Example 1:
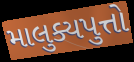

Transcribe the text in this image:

માલુક્યપુત્તો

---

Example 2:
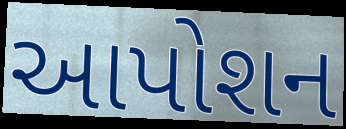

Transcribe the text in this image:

આપોશન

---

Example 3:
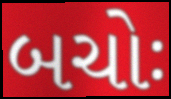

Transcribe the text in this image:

બચોઃ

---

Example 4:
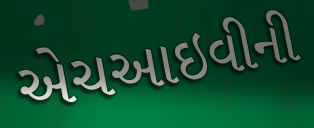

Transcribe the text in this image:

એચઆઇવીની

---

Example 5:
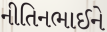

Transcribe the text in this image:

નીતિનભાઈને